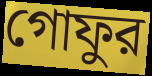
গোফুর